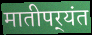
मातीपर्यंत